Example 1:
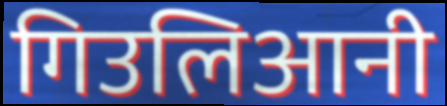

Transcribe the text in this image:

गिउलिआनी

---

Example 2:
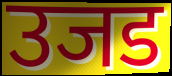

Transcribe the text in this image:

उजड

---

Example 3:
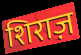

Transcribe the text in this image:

शिराज़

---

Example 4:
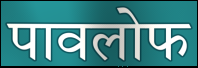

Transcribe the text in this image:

पावलोफ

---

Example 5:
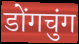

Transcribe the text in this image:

डोंगचुंग